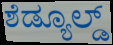
ಶೆಡ್ಯೂಲ್ಡ್